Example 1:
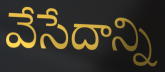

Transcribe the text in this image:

వేసేదాన్ని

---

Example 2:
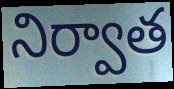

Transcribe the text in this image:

నిర్వాత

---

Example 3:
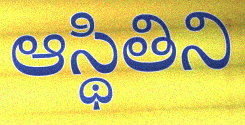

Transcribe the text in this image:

ఆస్థితిని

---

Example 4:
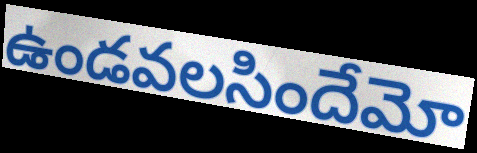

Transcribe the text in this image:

ఉండవలసిందేమో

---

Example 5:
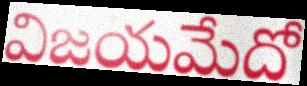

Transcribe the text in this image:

విజయమేదో